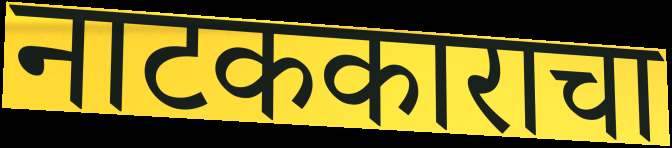
नाटककाराचा